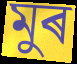
মুৰ